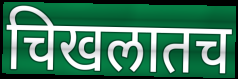
चिखलातच